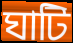
ঘাটি